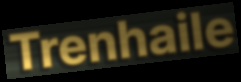
Trenhaile